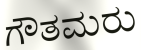
ಗೌತಮರು